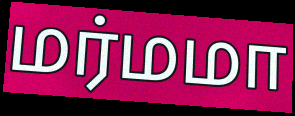
மர்மமா